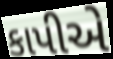
કાપીએ